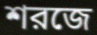
শরজে